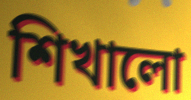
শিখালো